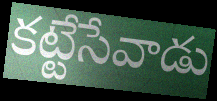
కట్టేసేవాడు